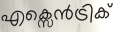
എക്സെൻട്രിക്